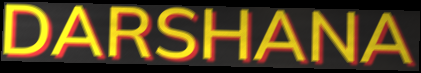
DARSHANA